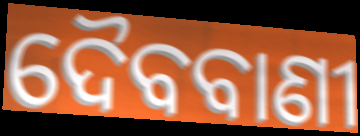
ଦୈବବାଣୀ